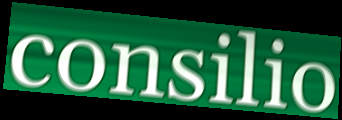
consilio